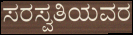
ಸರಸ್ವತಿಯವರ